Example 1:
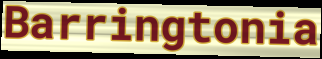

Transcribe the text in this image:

Barringtonia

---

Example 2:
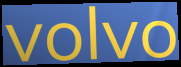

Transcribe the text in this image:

volvo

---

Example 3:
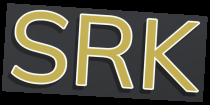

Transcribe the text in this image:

SRK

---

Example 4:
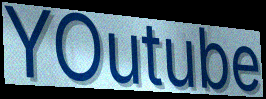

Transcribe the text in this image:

YOutube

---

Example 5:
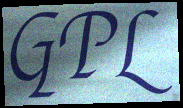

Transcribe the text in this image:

GPL